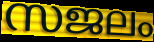
സജലം